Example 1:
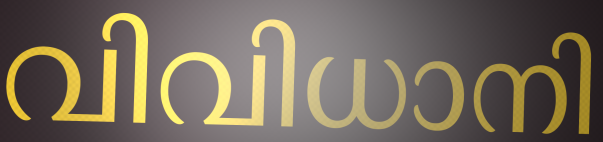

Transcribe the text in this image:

വിവിധാനി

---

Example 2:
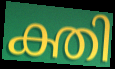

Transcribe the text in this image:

ക്തി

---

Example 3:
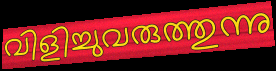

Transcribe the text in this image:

വിളിച്ചുവരുത്തുന്നു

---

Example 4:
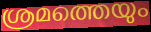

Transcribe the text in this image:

ശ്രമത്തെയും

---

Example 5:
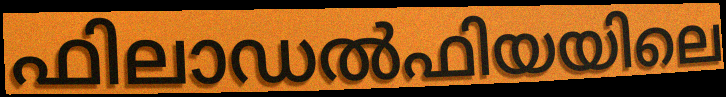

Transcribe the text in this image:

ഫിലാഡൽഫിയയിലെ